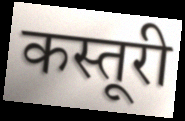
कस्तूरी